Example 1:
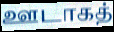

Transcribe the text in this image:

ஊடாகத்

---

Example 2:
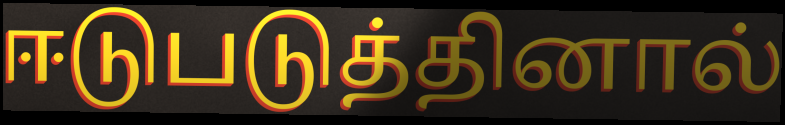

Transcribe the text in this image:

ஈடுபடுத்தினால்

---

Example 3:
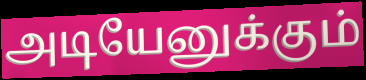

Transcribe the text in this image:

அடியேனுக்கும்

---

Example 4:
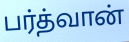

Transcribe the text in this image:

பர்த்வான்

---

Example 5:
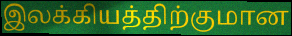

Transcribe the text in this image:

இலக்கியத்திற்குமான